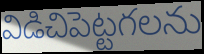
విడిచిపెట్టగలను